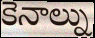
కెనాల్ను